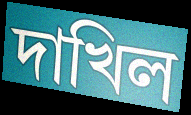
দাখিল